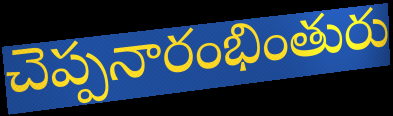
చెప్పనారంభింతురు